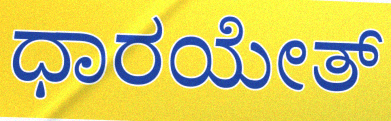
ಧಾರಯೇತ್